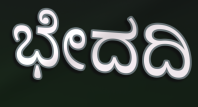
ಭೇದದಿ